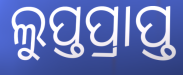
ଲୁପ୍ତପ୍ରାପ୍ତ